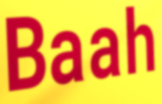
Baah